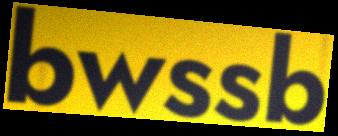
bwssb